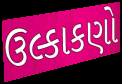
ઉલ્કાકણો